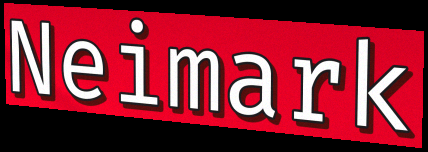
Neimark